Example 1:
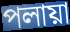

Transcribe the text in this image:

পলায়া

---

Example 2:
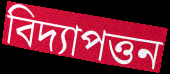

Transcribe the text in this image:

বিদ্যাপত্তন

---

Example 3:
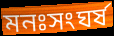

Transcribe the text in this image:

মনঃসংঘর্ষ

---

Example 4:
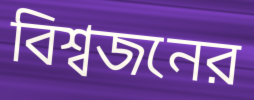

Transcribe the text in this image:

বিশ্বজনের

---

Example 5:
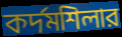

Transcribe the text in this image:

কর্দমশিলার